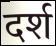
दर्श